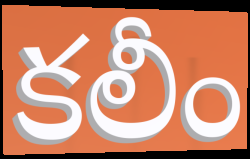
కలీం